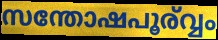
സന്തോഷപൂര്വ്വം